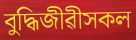
বুদ্ধিজীৱীসকল